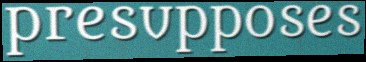
presupposes